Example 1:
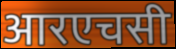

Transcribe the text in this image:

आरएचसी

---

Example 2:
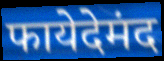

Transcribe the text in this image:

फायेदेमंद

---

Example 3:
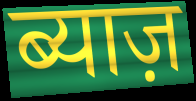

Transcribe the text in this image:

ब्याज़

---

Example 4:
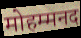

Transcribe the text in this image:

मोहम्मनद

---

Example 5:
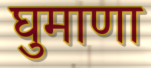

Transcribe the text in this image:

घुमाणा